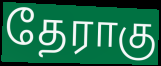
தேராகு